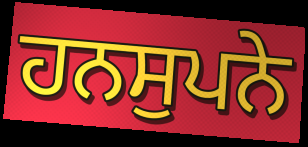
ਹਨਸੁਪਨੇ